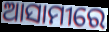
ଆସାମୀରେ